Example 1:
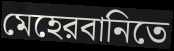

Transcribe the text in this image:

মেহেরবানিতে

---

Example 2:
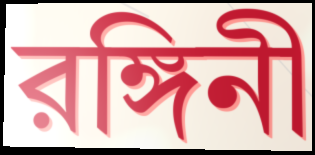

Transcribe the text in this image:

রঙ্গিনী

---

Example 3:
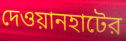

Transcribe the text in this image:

দেওয়ানহাটের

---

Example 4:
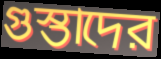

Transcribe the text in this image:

গুস্তাদের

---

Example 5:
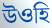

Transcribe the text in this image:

উওহি